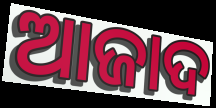
ଆଜାଦ